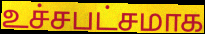
உச்சபட்சமாக